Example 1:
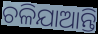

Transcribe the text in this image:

ଚଳିଯାଆନ୍ତି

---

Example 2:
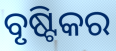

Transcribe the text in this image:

ବୃଷ୍ଟିକର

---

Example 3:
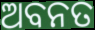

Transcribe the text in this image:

ଅବନତ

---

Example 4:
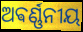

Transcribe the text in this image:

ଅଵର୍ଣ୍ଣନୀୟ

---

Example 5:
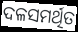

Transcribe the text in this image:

ଦଳସମର୍ଥିତ